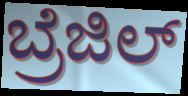
ಬ್ರೆಜಿಲ್